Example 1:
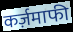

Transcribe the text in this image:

कर्ज़माफी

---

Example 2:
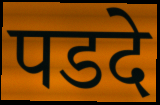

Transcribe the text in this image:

पडदे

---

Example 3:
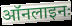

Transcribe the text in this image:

ऑनलाइनः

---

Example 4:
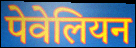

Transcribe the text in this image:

पेवेलियन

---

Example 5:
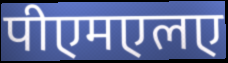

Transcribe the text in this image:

पीएमएलए